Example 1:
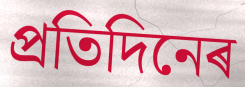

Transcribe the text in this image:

প্ৰতিদিনেৰ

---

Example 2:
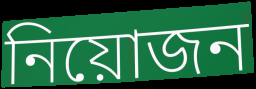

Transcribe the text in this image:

নিয়োজন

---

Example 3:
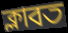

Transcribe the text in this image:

ক্লাবত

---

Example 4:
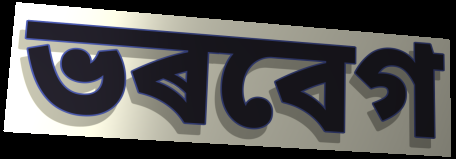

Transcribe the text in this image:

ভৰবেগ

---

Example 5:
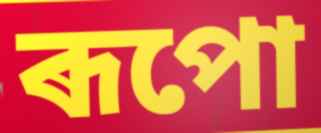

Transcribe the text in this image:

ৰূপো